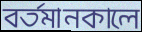
বর্তমানকালে